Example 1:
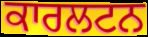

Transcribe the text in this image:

ਕਾਰਲਟਨ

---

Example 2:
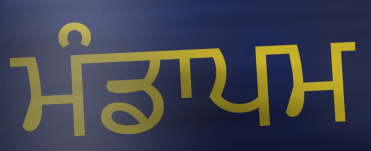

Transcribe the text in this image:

ਮੰਡਾਪਮ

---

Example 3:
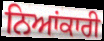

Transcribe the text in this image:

ਨਿਆਂਕਾਰੀ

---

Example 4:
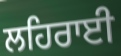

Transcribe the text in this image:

ਲਹਿਰਾਈ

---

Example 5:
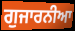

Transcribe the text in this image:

ਗੁਜਾਰਨੀਆ